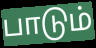
பாடும்